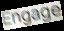
Engage